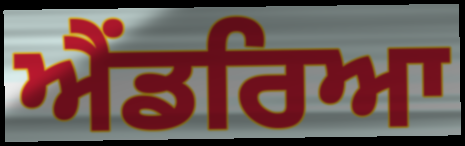
ਐਂਡਰਿਆ